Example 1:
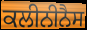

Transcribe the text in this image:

ਕਲੀਨੀਨੈਸ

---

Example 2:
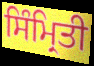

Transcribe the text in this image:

ਸਿੰਮ੍ਰਿਤੀ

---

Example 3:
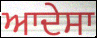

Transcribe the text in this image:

ਆਦੇਸਾ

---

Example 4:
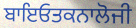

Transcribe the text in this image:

ਬਾਇਓਤਕਨਾਲੋਜੀ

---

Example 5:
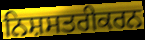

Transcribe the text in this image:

ਨਿਸ਼ਸਤਰੀਕਰਨ